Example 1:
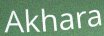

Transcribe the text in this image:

Akhara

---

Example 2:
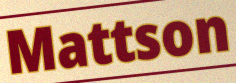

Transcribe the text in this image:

Mattson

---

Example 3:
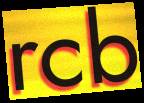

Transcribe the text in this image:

rcb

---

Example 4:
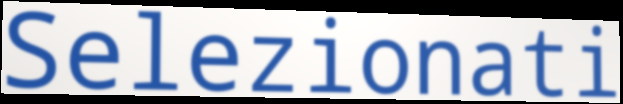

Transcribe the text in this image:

Selezionati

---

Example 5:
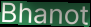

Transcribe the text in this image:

Bhanot